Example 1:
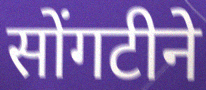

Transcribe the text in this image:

सोंगटीने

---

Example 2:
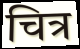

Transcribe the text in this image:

चित्र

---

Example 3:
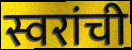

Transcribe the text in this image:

स्वरांची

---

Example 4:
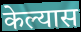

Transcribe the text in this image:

केल्यास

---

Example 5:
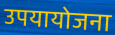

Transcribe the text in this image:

उपयायोजना